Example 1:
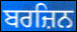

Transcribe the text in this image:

ਬਰਜ਼ਿਨ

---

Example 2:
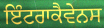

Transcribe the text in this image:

ਇੰਟਰਾਕੈਵੇਨਸ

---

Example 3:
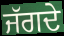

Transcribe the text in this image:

ਜੱਗਦੇ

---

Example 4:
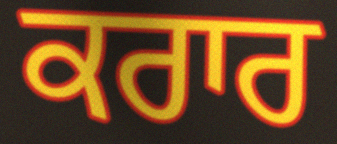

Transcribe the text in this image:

ਕਰਾਰ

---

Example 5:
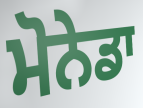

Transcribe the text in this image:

ਮੋਨੇਡਾ